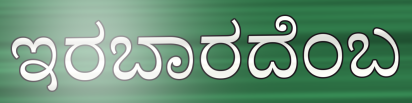
ಇರಬಾರದೆಂಬ